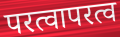
परत्वापरत्व